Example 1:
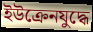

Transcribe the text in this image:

ইউক্রেনযুদ্ধে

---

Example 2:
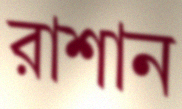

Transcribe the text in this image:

রাশান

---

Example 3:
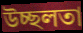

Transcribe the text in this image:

উচ্ছলতা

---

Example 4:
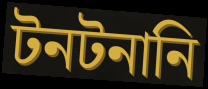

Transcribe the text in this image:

টনটনানি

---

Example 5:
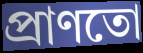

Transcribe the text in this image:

প্রাণতো